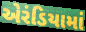
એરંડિયામાં